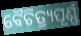
ବୈଚିତ୍ର୍ୟପୂର୍ଣ୍ଣ